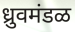
ध्रुवमंडळ